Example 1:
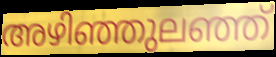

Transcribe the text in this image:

അഴിഞ്ഞുലഞ്ഞ്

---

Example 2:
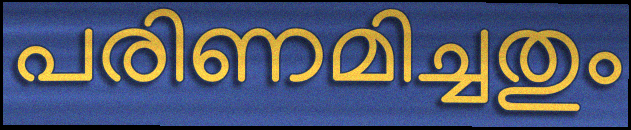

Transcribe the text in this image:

പരിണമിച്ചതും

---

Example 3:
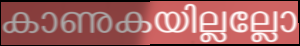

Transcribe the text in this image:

കാണുകയില്ലല്ലോ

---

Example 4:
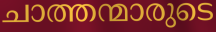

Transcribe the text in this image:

ചാത്തന്മാരുടെ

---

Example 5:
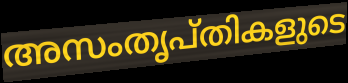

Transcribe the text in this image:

അസംതൃപ്തികളുടെ